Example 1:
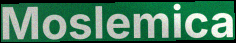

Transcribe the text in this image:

Moslemica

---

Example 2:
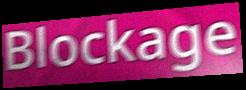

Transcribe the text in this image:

Blockage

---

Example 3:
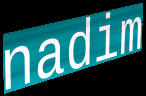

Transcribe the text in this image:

nadim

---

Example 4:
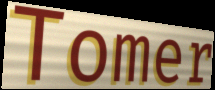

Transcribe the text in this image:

Tomer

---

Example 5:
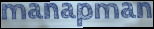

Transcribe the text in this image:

manapman